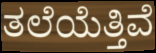
ತಲೆಯೆತ್ತಿವೆ